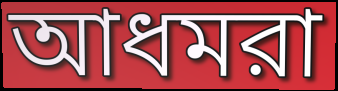
আধমরা